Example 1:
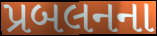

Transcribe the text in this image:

પ્રબલનના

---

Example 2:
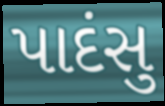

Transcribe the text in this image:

પાદંસુ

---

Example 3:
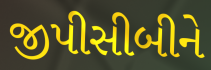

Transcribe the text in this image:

જીપીસીબીને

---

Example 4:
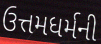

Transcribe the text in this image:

ઉત્તમધર્મની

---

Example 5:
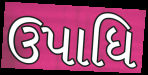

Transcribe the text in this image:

ઉપાધિ